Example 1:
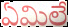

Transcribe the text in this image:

ఏమిలే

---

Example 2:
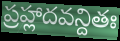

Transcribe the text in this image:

ప్రహ్లాదవన్దితః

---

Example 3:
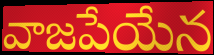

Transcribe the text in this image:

వాజపేయేన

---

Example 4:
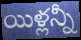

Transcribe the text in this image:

యిళ్లన్నీ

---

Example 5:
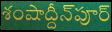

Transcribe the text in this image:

శంషాద్దీన్‌పూర్